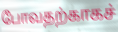
போவதற்காகச்